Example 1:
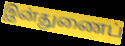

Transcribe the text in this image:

இன்துணைப்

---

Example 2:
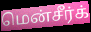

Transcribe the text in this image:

மென்சீர்க்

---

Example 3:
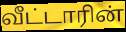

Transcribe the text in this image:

வீட்டாரின்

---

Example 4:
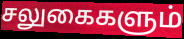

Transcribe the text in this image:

சலுகைகளும்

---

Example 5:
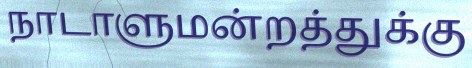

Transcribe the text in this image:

நாடாளுமன்றத்துக்கு